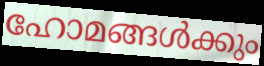
ഹോമങ്ങൾക്കും